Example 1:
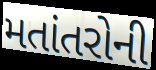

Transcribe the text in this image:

મતાંતરોની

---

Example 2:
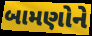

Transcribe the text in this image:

બામણોને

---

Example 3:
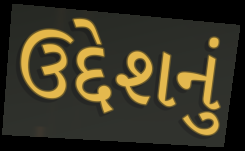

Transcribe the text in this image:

ઉદ્દેશનું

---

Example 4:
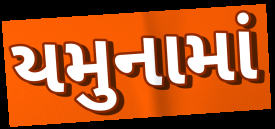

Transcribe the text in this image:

યમુનામાં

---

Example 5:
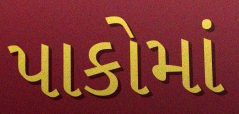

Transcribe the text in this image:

પાકોમાં